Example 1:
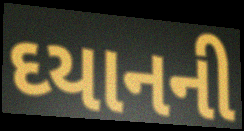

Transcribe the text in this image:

ઘ્યાનની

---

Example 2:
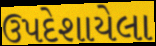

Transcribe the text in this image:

ઉપદેશાયેલા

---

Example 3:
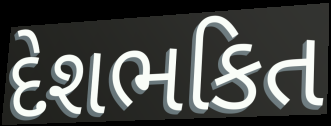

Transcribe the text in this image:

દેશભકિત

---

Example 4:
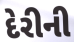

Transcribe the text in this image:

દેરીની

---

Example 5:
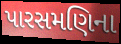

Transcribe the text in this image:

પારસમણિના